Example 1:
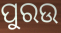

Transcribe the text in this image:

ପୁରଉ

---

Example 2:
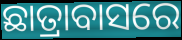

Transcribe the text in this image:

ଛାତ୍ରାବାସରେ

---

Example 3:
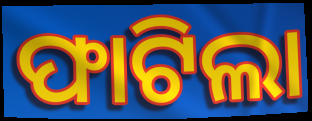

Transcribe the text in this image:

ଫାଟିଲା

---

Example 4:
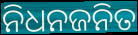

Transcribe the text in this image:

ନିଧନଜନିତ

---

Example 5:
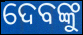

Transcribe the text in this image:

ଦେବଙ୍କୁ